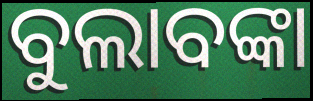
ବୁଲାବଙ୍କା